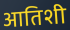
आतिशी